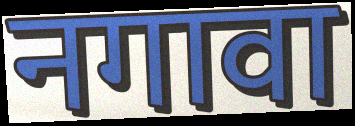
नगावा